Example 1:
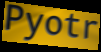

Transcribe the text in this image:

Pyotr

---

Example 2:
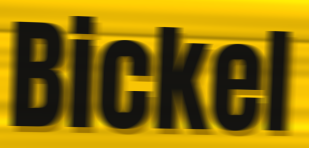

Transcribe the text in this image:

Bickel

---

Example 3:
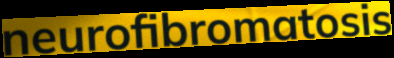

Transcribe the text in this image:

neurofibromatosis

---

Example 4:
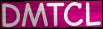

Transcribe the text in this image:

DMTCL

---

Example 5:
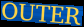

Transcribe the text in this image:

OUTER